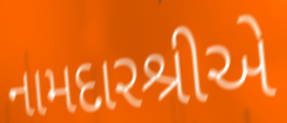
નામદારશ્રીએ